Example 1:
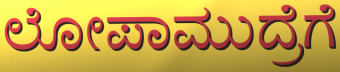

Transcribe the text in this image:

ಲೋಪಾಮುದ್ರೆಗೆ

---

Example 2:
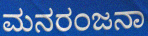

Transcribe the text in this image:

ಮನರಂಜನಾ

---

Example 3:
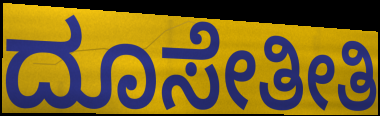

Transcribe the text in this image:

ದೂಸೇತೀತಿ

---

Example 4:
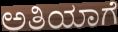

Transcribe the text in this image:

ಅತಿಯಾಗೆ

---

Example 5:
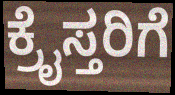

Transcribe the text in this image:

ಕ್ರೈಸ್ತರಿಗೆ